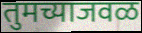
तुमच्याजवळ